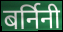
बर्निनी